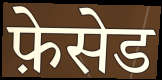
फ़ेसेड